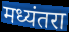
मध्यंतरा